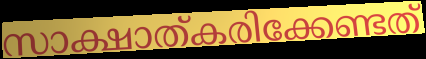
സാക്ഷാത്കരിക്കേണ്ടത്